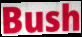
Bush